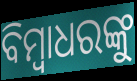
ବିମ୍ୱାଧରଙ୍କୁ